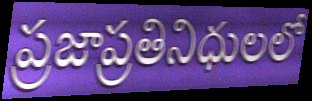
ప్రజాప్రతినిధులలో